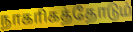
நாகரிகத்தோடும்